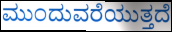
ಮುಂದುವರೆಯುತ್ತದೆ